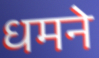
धमने